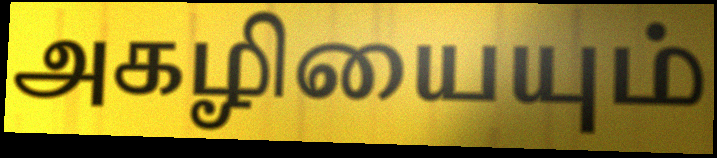
அகழியையும்